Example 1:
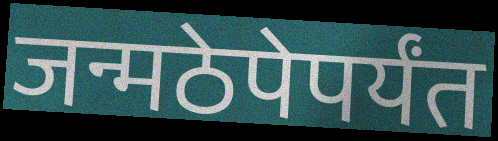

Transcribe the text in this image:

जन्मठेपेपर्यंत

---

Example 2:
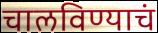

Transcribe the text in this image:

चालविण्याचं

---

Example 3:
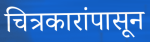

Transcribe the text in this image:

चित्रकारांपासून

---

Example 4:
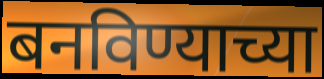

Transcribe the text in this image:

बनविण्याच्या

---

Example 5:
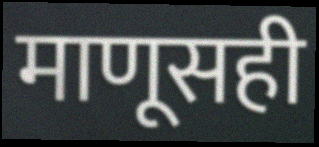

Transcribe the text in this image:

माणूसही